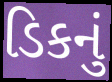
ડિકનું